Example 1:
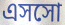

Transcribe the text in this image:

এসসো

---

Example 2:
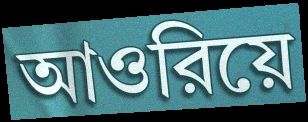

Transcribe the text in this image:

আওরিয়ে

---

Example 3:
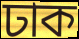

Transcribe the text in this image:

ঢাক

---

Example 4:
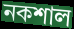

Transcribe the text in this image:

নকশাল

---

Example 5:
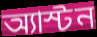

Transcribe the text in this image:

অ্যাস্টন